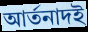
আর্তনাদই